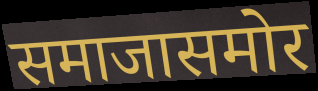
समाजासमोर